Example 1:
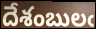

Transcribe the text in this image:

దేశంబులఁ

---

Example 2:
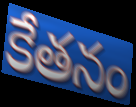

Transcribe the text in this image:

కేతనం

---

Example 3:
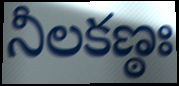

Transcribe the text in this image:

నీలకణ్ఠః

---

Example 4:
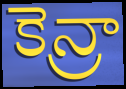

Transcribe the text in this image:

కెన్రా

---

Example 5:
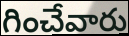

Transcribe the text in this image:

గించేవారు